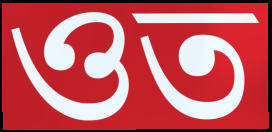
ওত